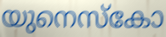
യുനെസ്കോ